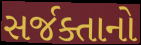
સર્જક્તાનો